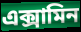
এক্সামিন